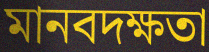
মানবদক্ষতা